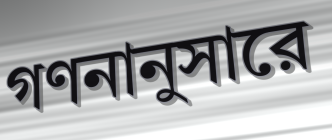
গণনানুসারে